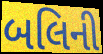
બલિની